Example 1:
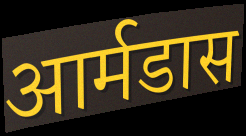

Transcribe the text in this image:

आर्मडास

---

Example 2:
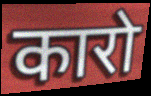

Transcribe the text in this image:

कारो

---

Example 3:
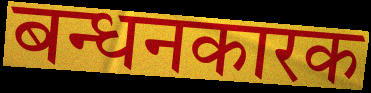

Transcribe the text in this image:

बन्धनकारक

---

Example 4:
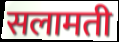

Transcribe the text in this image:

सलामती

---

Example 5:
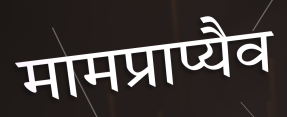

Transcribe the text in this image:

मामप्राप्यैव